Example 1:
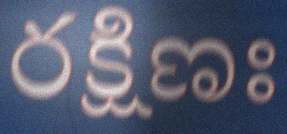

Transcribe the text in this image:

రక్షిణః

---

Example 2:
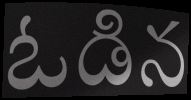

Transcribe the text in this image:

ఓడిన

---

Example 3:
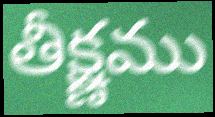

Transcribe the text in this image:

తీక్ష్ణము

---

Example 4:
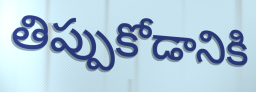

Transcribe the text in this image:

తిప్పుకోడానికి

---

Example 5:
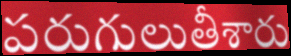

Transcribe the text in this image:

పరుగులుతీశారు